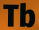
Tb